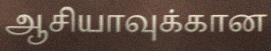
ஆசியாவுக்கான